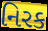
નિરક